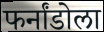
फर्नांडोला